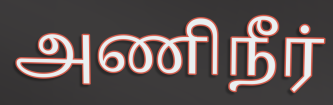
அணிநீர்